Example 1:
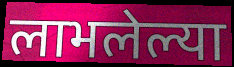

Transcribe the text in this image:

लाभलेल्या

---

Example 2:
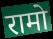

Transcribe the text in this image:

रामो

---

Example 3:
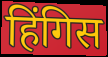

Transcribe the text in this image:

हिंगिस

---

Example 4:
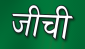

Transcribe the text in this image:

जीची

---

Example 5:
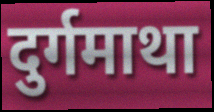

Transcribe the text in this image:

दुर्गमाथा